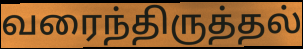
வரைந்திருத்தல்